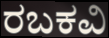
ರಬಕವಿ